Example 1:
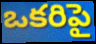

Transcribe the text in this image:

ఒకరిపై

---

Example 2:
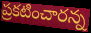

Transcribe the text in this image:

ప్రకటించారన్న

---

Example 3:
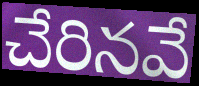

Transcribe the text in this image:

చేరినవే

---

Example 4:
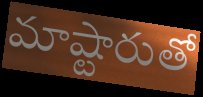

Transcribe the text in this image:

మాష్టారుతో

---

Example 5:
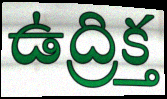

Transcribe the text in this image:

ఉద్రిక్త